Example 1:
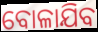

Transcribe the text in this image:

ବୋଳାଯିବ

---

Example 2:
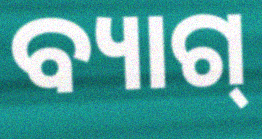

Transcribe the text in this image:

ବ୍ୟାଗ୍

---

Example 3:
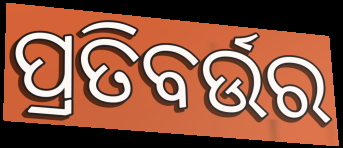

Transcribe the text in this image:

ପ୍ରତିବର୍ଉର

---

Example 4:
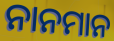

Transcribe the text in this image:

ନାନମାନ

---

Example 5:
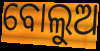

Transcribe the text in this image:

ବୋଲୁଅ